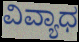
ವಿವ್ಯಾಧ